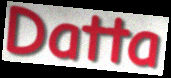
Datta